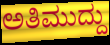
ಅತಿಮುದ್ದು